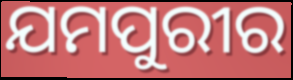
ଯମପୁରୀର